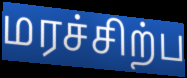
மரச்சிற்ப